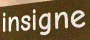
insigne